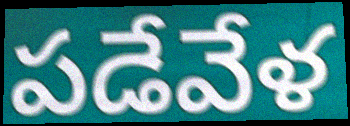
పడేవేళ